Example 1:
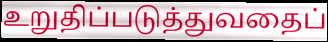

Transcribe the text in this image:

உறுதிப்படுத்துவதைப்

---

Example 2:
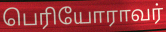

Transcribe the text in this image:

பெரியோராவர்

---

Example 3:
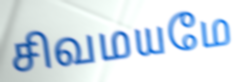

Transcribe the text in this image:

சிவமயமே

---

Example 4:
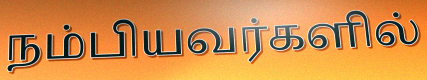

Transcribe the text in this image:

நம்பியவர்களில்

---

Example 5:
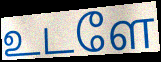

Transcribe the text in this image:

உடளே